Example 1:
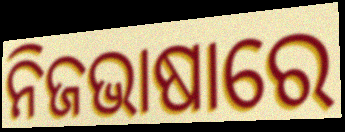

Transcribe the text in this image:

ନିଜଭାଷାରେ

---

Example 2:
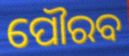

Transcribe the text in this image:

ପୌରବ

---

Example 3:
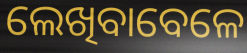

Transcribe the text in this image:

ଲେଖିବାବେଳେ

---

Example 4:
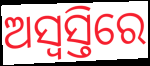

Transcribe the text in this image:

ଅସ୍ୱସ୍ତିରେ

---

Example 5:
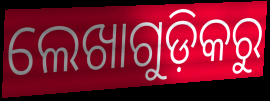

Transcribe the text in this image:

ଲେଖାଗୁଡ଼ିକରୁ